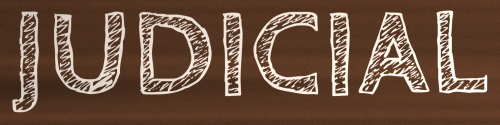
JUDICIAL